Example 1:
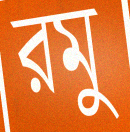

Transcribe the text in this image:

রমু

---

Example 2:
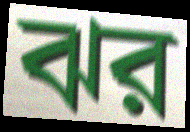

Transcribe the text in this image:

ঝর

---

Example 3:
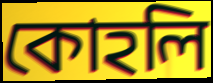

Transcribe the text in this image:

কোহলি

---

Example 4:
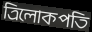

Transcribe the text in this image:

ত্রিলোকপতি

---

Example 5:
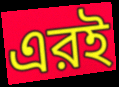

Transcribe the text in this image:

এরই